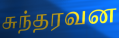
சுந்தரவன